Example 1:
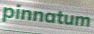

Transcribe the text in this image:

pinnatum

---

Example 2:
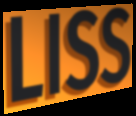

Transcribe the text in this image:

LISS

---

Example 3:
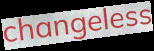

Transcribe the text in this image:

changeless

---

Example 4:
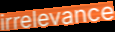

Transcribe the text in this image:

irrelevance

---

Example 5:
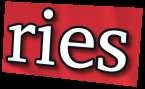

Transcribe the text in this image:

ries